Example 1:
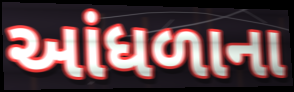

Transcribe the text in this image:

આંધળાના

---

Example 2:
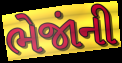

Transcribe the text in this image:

ભેજાંની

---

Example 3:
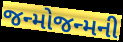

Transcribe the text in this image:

જન્મોજન્મની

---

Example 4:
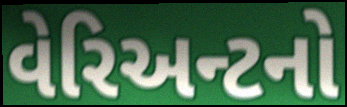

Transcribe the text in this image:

વેરિઅન્ટનો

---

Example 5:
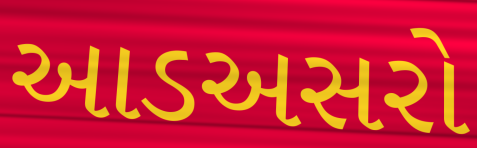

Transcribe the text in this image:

આડઅસરો